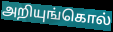
அறியுங்கொல்